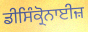
ਡੀਸਿੰਕ੍ਰੋਨਾਈਜ਼